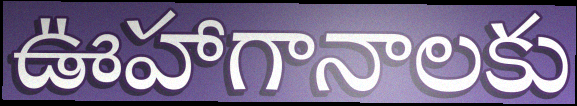
ఊహాగానాలకు